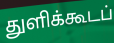
துளிக்கூடப்